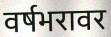
वर्षभरावर